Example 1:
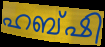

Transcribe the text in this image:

ഹബ്ഷി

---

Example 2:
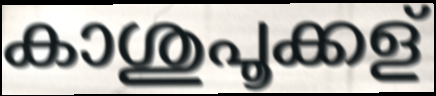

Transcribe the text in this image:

കാശുപൂക്കള്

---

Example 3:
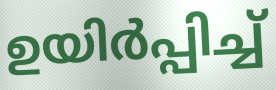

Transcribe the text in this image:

ഉയിർപ്പിച്ച്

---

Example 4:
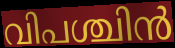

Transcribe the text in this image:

വിപശ്ചിൻ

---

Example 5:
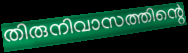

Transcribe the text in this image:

തിരുനിവാസത്തിന്റെ